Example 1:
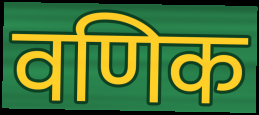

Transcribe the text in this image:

वणिक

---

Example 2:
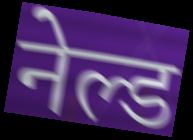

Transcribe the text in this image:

नेल्ड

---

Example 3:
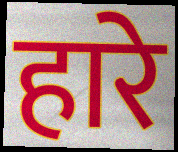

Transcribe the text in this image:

हारे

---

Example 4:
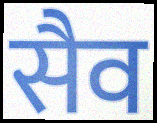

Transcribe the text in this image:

सैव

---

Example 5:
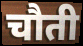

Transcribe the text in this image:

चौती